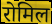
रोमिल